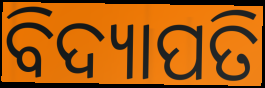
ବିଦ୍ୟାପତି